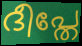
ദീപ്തേ